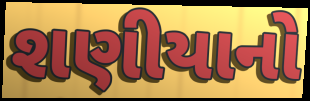
શણીયાનો